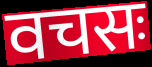
वचसः